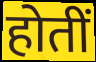
होतीं